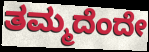
ತಮ್ಮದೆಂದೇ